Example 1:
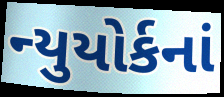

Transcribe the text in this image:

ન્યુયોર્કનાં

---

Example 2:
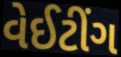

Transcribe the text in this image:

વેઈટીંગ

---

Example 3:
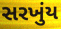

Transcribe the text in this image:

સરખુંય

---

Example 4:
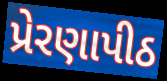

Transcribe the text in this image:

પ્રેરણાપીઠ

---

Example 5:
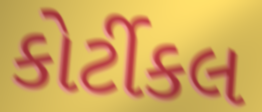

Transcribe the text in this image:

કોર્ટીકલ